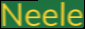
Neele